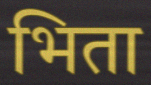
भिता